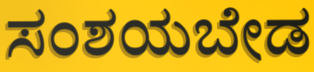
ಸಂಶಯಬೇಡ